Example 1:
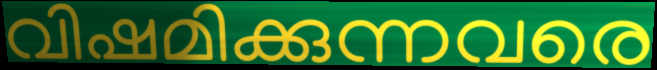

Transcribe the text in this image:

വിഷമിക്കുന്നവരെ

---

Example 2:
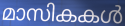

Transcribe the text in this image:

മാസികകൾ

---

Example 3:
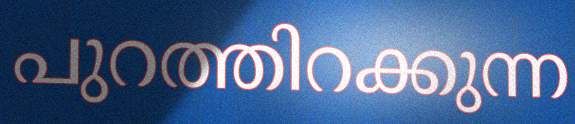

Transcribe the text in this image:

പുറത്തിറക്കുന്ന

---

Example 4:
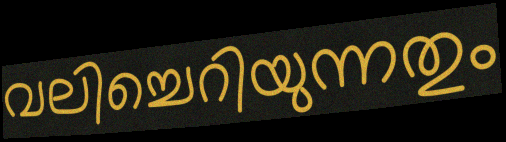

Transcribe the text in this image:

വലിച്ചെറിയുന്നതും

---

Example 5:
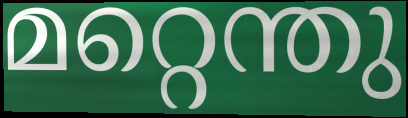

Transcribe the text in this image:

മറ്റെന്തു